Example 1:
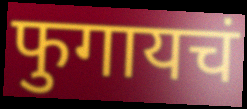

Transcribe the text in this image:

फुगायचं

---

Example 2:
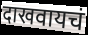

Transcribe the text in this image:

दाखवायचं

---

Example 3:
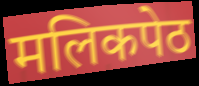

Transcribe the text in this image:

मलिकपेठ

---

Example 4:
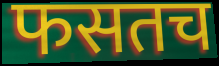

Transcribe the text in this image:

फसतच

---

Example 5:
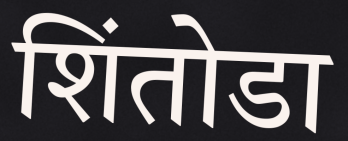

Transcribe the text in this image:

शिंतोडा